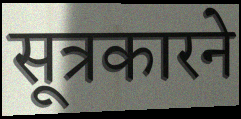
सूत्रकारने